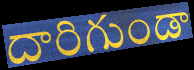
దారిగుండా